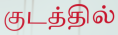
குடத்தில்